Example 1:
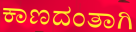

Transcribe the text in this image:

ಕಾಣದಂತಾಗಿ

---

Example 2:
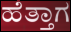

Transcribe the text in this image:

ಹೆತ್ತಾಗ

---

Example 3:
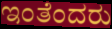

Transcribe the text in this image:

ಇಂತೆಂದರು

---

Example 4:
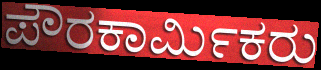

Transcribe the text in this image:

ಪೌರಕಾರ್ಮಿಕರು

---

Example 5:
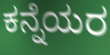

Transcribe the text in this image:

ಕನ್ನೆಯರ